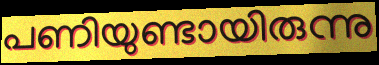
പണിയുണ്ടായിരുന്നു